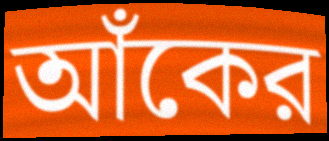
আঁকের